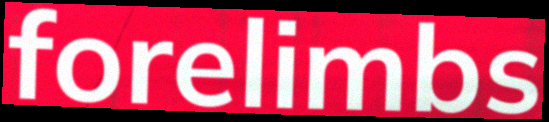
forelimbs